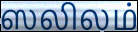
ஸலிலம்